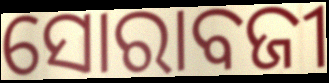
ସୋରାବଜୀ